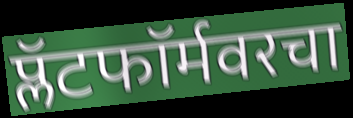
प्लॅटफॉर्मवरचा